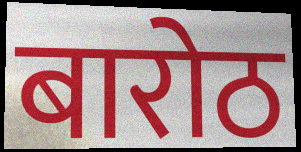
बारोठ